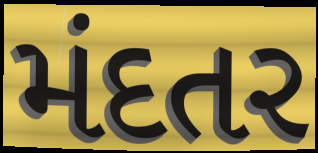
મંદતર